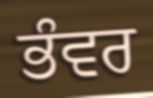
ਭੰਵਰ